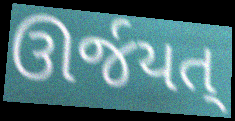
ઊર્જયત્